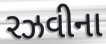
રઝવીના